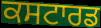
ਕਸਟਾਰਡ